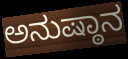
ಅನುಷ್ಠಾನ